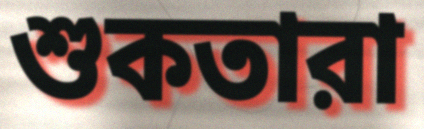
শুকতারা